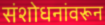
संशोधनांवरून